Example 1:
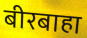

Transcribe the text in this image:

बीरबाहा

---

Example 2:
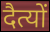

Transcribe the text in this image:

दैत्यों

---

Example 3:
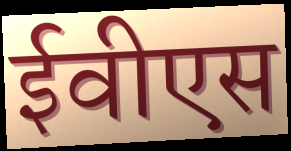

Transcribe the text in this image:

ईवीएस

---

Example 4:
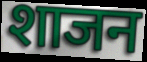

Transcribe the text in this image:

शाजन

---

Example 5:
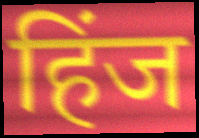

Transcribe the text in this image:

हिंज